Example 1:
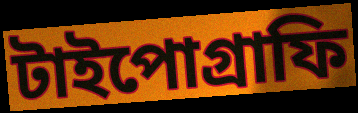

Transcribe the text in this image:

টাইপোগ্রাফি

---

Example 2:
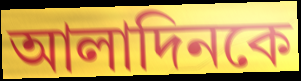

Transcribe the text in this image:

আলাদিনকে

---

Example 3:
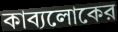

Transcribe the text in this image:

কাব্যলোকের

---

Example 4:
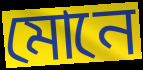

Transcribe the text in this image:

মোনে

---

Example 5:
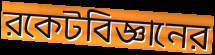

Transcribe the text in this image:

রকেটবিজ্ঞানের